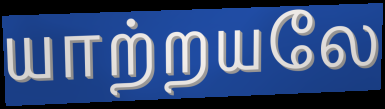
யாற்றயலே